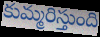
కుమ్మరిస్తుంది